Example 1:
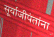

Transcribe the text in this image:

सूर्याजीपंतांना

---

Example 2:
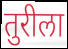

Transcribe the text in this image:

तुरीला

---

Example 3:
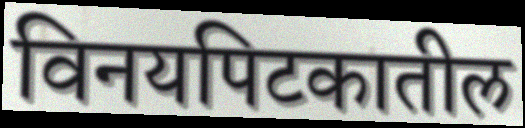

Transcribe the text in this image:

विनयपिटकातील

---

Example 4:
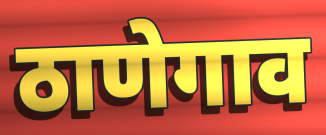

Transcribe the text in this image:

ठाणेगाव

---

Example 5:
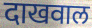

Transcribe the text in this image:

दाखवाल